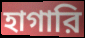
হাগারি